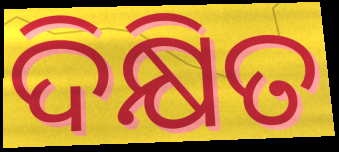
ଦିକ୍ଷିତ